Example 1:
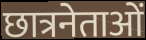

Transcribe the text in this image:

छात्रनेताओं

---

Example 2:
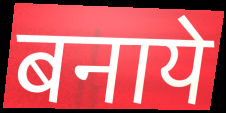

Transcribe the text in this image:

बनाये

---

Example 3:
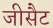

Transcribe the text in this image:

जीसैट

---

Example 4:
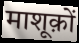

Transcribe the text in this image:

माशूक़ों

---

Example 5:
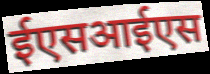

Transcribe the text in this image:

ईएसआईएस